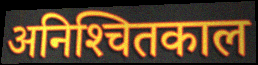
अनिश्‍चितकाल